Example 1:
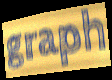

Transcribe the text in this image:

graph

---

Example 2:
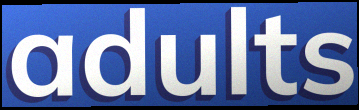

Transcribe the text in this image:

adults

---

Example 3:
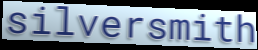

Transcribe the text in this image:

silversmith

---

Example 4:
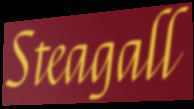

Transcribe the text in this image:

Steagall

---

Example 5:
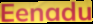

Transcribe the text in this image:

Eenadu